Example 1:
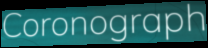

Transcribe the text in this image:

Coronograph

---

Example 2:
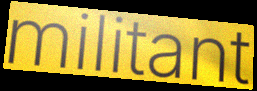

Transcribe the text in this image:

militant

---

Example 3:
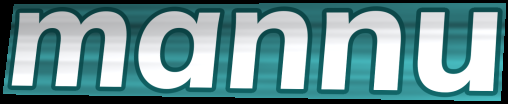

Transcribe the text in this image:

mannu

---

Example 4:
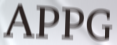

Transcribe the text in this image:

APPG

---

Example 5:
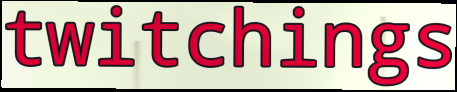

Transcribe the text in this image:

twitchings